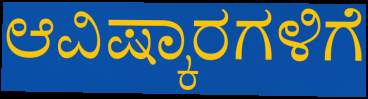
ಆವಿಷ್ಕಾರಗಳಿಗೆ